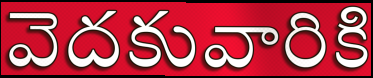
వెదకువారికి